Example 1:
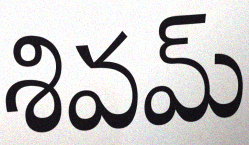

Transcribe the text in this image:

శివమ్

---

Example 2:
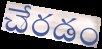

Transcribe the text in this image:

చేరడం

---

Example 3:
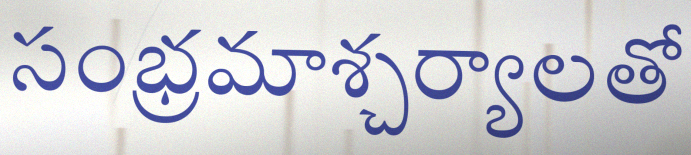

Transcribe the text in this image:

సంభ్రమాశ్చర్యాలతో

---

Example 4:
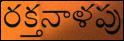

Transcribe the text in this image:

రక్తనాళపు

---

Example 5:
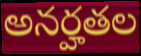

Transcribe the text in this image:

అనర్హతల